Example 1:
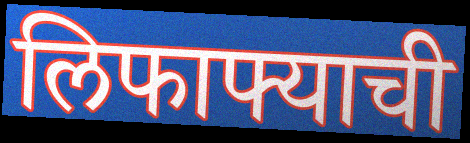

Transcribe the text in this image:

लिफाफ्याची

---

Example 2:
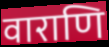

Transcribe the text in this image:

वाराणि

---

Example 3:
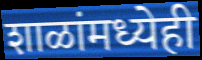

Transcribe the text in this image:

शाळांमध्येही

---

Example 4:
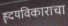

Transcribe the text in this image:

हृदयविकाराचा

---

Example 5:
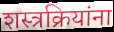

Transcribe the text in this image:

शस्त्रक्रियांना